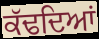
ਕੱਢਦਿਆਂ